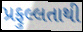
પ્રફુલ્લતાથી